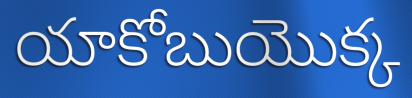
యాకోబుయొక్క